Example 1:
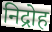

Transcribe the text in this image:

निद्रोह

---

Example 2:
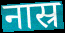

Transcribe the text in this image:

नास्र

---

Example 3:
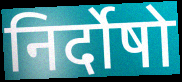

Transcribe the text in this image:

निर्दोषो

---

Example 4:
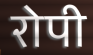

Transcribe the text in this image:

रोपी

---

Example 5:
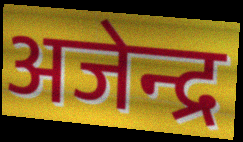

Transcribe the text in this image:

अजेन्द्र